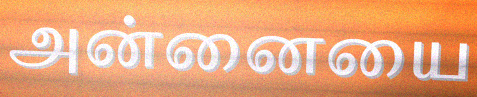
அன்னையை